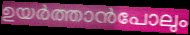
ഉയർത്താൻപോലും